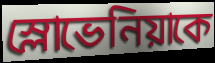
স্লোভেনিয়াকে